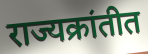
राज्यक्रांतीत